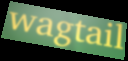
wagtail